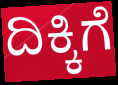
ದಿಕ್ಕಿಗೆ